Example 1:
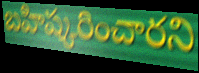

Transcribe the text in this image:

బహిష్కరించారని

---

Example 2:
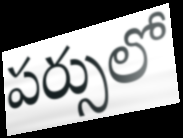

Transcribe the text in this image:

పర్సులో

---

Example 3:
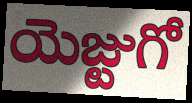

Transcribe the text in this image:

యెజ్టుగో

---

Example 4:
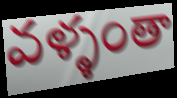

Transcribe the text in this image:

వళ్ళంతా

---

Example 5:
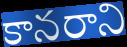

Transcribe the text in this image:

కానరాని